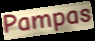
Pampas